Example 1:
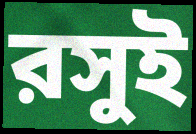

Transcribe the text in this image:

রসুই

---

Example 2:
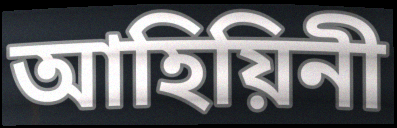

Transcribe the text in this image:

আহিয়িনী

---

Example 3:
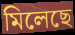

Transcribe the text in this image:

মিলেছে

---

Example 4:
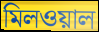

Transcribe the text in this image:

মিলওয়াল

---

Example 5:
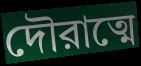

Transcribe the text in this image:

দৌরাত্মে